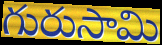
గురుసామి